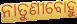
ନାତୁଣୀବୋହୁ